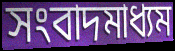
সংবাদমাধ্যম